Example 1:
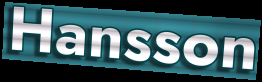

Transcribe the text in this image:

Hansson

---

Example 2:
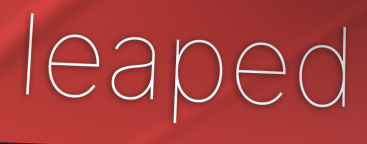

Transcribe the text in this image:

leaped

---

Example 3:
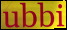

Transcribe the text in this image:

ubbi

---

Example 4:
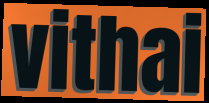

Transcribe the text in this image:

vithai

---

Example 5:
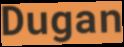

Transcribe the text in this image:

Dugan